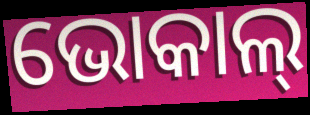
ଭୋକାଲ୍